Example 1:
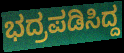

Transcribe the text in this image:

ಭದ್ರಪಡಿಸಿದ್ದ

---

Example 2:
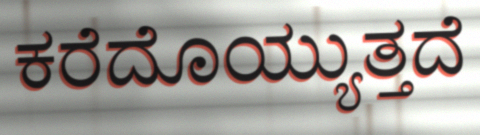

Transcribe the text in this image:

ಕರೆದೊಯ್ಯುತ್ತದೆ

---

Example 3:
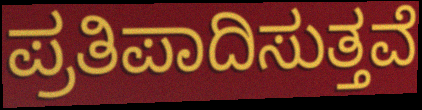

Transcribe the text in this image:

ಪ್ರತಿಪಾದಿಸುತ್ತವೆ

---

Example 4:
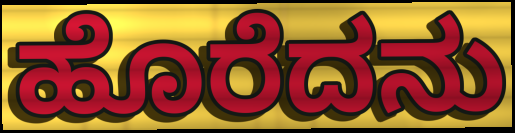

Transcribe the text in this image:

ಹೊರೆದನು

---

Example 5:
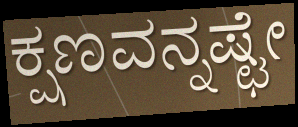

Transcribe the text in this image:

ಕ್ಷಣವನ್ನಷ್ಟೇ